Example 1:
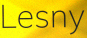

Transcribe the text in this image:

Lesny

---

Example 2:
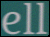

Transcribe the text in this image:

ell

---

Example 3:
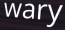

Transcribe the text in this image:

wary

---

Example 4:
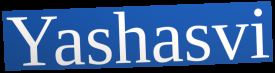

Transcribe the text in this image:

Yashasvi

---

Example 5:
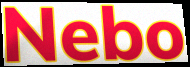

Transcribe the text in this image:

Nebo